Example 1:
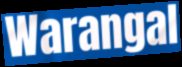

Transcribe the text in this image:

Warangal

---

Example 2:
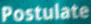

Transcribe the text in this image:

Postulate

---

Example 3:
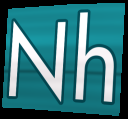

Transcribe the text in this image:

Nh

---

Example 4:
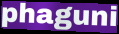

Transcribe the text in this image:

phaguni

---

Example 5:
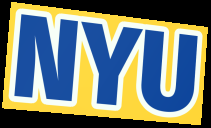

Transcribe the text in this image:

NYU